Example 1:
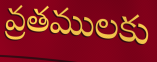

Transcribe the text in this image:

వ్రతములకు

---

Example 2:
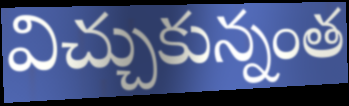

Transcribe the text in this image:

విచ్చుకున్నంత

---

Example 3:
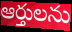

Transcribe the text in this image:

ఆర్తులను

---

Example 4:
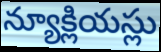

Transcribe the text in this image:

న్యూక్లియస్లు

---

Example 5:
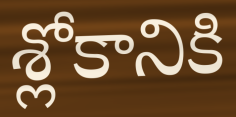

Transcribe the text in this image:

శ్లోకానికి